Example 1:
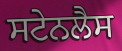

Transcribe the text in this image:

ਸਟੇਨਲੈਸ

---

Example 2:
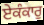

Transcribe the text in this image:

ਏਕੰਕਾਰੁ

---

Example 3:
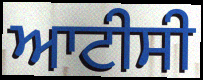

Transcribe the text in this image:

ਆਟੀਸੀ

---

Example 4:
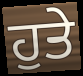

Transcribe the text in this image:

ਹੁਤੇ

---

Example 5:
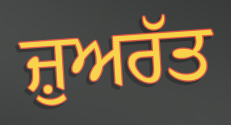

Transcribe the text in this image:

ਜ਼ੁਅਰੱਤ